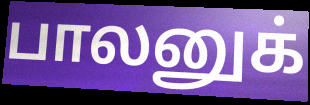
பாலனுக்